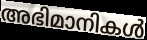
അഭിമാനികൾ